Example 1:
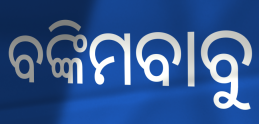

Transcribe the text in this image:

ବଙ୍କିମବାବୁ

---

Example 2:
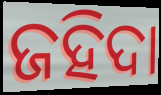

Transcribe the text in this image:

ଜହିଦା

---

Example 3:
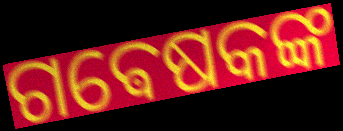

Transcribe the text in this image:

ଗଵେଷକଙ୍କ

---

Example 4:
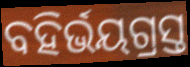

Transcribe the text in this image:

ବହିର୍ଭୟଗ୍ରସ୍ତ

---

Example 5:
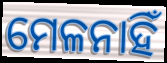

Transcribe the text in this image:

ମେଳନାହିଁ